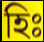
হিঃ